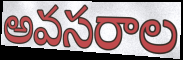
అవసరాల